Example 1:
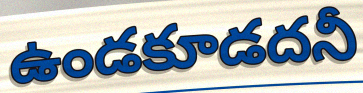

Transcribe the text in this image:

ఉండకూడదనీ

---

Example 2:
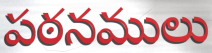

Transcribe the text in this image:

పఠనములు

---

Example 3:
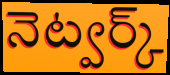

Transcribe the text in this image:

నెట్వర్క్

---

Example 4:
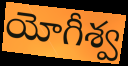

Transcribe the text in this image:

యోగీశ్వ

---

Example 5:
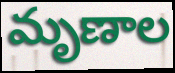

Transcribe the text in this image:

మృణాల